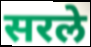
सरले